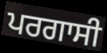
ਪਰਗਾਸੀ